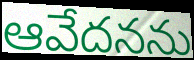
ఆవేదనను